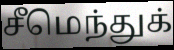
சீமெந்துக்